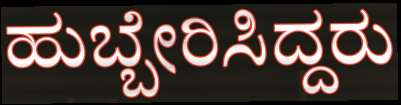
ಹುಬ್ಬೇರಿಸಿದ್ದರು